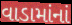
વાડામાંનાં